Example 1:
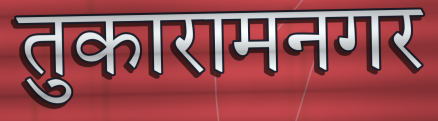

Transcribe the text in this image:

तुकारामनगर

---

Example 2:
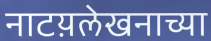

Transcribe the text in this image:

नाटय़लेखनाच्या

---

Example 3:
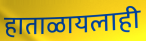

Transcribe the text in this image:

हाताळायलाही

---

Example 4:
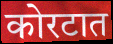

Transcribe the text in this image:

कोरटात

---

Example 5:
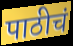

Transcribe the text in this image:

पाठीचं